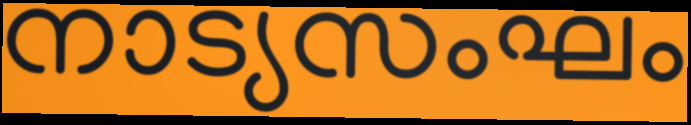
നാട്യസംഘം